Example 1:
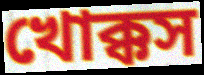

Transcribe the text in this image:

খোক্কস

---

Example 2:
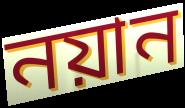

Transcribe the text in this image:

নয়ান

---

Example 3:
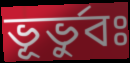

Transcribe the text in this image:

ভূর্ভুবঃ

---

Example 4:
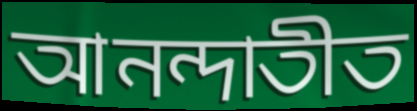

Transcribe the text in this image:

আনন্দাতীত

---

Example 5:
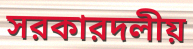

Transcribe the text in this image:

সরকারদলীয়